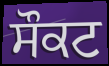
ਸੌਕਟ